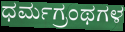
ಧರ್ಮಗ್ರಂಥಗಳ